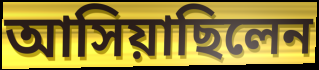
আসিয়াছিলেন